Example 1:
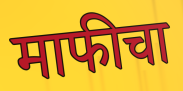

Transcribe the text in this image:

माफीचा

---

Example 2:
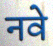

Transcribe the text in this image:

नवे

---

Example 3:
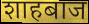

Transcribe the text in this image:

शाहबाज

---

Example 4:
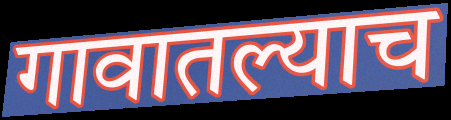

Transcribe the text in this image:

गावातल्याच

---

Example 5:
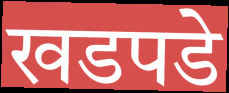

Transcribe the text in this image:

खडपडे